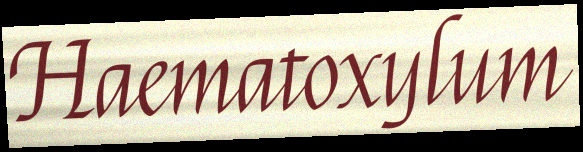
Haematoxylum